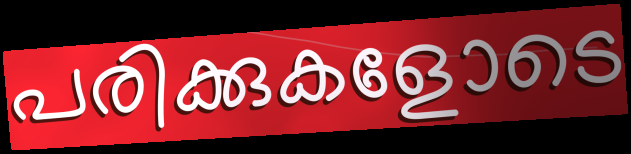
പരിക്കുകളോടെ